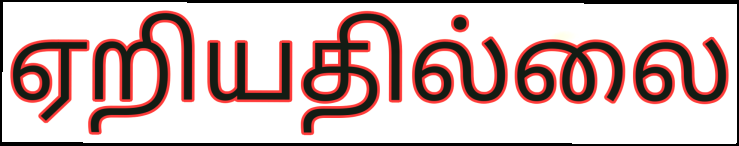
ஏறியதில்லை